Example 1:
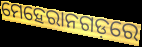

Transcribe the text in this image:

ମେହେରାନଗଡ଼ରେ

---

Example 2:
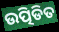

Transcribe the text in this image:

ଉତ୍ପିଡିତ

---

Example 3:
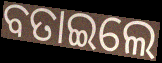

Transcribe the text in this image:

ବତାଇଲେ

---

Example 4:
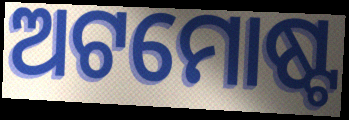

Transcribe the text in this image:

ଅଟମୋଷ୍ଟ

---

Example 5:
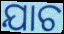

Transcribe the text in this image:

ଯାଚ